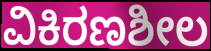
ವಿಕಿರಣಶೀಲ